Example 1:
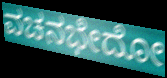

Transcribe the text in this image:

ವಚನಭೇದೋ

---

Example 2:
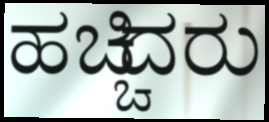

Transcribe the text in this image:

ಹಚ್ಚಿದರು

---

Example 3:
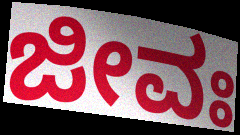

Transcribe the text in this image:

ಜೀವಃ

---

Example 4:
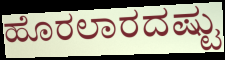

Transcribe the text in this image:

ಹೊರಲಾರದಷ್ಟು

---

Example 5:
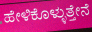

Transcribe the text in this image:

ಹೇಳಿಕೊಳ್ಳುತ್ತೇನೆ